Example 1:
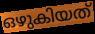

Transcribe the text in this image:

ഒഴുകിയത്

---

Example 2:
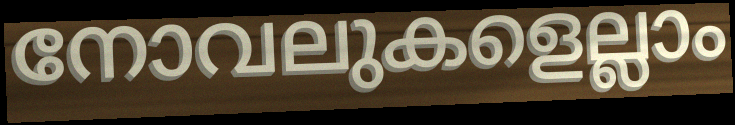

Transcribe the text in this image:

നോവലുകളെല്ലാം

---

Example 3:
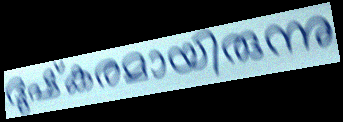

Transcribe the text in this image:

ദുഷ്‌കരമായിരുന്നു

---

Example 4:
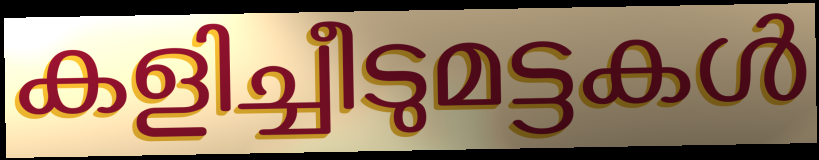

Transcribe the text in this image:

കളിച്ചീടുമട്ടകൾ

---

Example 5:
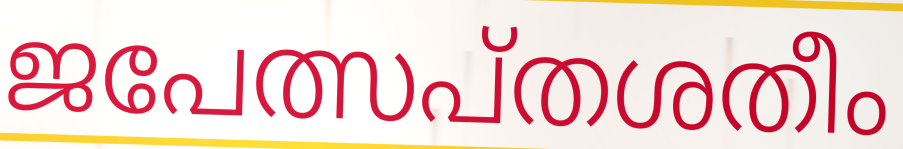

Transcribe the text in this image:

ജപേത്സപ്തശതീം